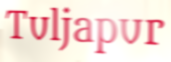
Tuljapur